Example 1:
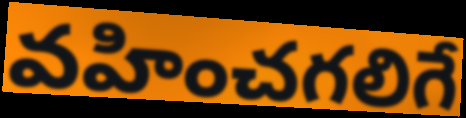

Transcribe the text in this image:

వహించగలిగే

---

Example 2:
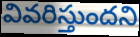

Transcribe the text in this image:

వివరిస్తుందని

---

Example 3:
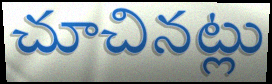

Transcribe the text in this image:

చూచినట్లు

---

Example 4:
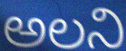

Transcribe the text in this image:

అలని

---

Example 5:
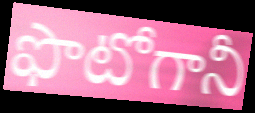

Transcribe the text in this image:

ఫొటోగానీ